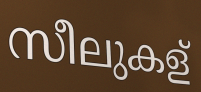
സീലുകള്